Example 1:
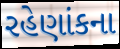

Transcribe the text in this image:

રહેણાંકના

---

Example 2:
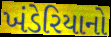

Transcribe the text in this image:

ખંડેરિયાનો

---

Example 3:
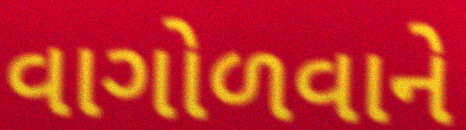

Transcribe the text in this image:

વાગોળવાને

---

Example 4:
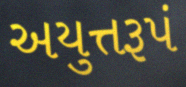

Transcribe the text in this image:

અયુત્તરૂપં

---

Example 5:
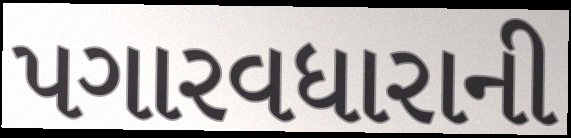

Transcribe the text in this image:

પગારવધારાની